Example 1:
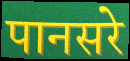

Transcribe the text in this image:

पानसरे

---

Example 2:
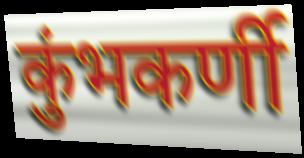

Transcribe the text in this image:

कुंभकर्णी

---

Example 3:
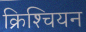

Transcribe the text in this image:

क्रिश्‍चियन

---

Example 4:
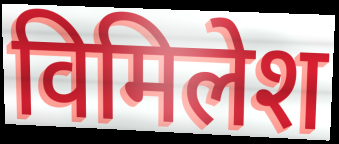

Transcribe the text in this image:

विमिलेश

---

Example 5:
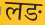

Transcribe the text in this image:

लङ